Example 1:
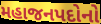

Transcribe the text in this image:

મહાજનપદોનો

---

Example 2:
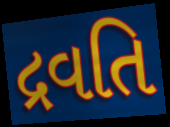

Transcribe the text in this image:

દ્રવતિ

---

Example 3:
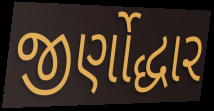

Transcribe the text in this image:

જીર્ણોદ્ધાર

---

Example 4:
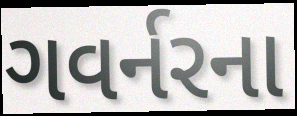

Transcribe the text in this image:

ગવર્નરના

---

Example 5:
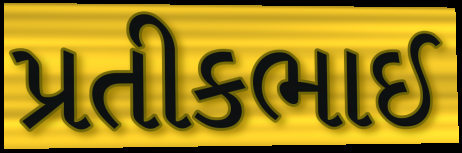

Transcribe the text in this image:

પ્રતીકભાઈ